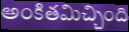
అంకితమిచ్చింది